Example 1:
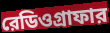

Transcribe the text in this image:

রেডিওগ্রাফার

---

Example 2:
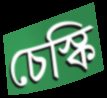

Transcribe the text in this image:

চেস্কি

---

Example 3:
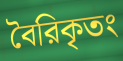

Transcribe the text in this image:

বৈরিকৃতং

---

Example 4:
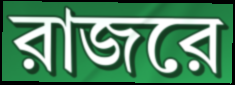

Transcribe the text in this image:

রাজরে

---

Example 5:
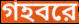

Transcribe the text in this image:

গহবরে